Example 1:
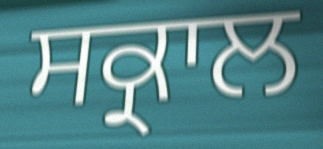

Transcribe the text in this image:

ਸਕ੍ਰਾਲ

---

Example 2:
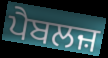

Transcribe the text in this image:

ਪੈਬਲਜ਼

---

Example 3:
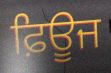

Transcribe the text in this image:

ਫ਼ਿਊਜ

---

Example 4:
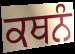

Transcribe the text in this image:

ਕਥਨੰ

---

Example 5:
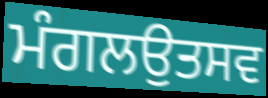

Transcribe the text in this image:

ਮੰਗਲਉਤਸਵ